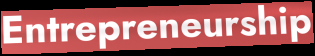
Entrepreneurship